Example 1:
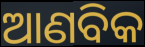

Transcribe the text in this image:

ଆଣବିକ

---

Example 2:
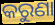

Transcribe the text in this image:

କରୁଣା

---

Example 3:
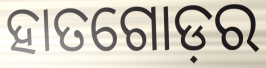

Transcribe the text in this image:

ହାତଗୋଡ଼ର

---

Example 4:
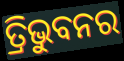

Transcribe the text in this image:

ତ୍ରିଭୁବନର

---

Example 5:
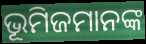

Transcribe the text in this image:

ଭୂମିଜମାନଙ୍କ